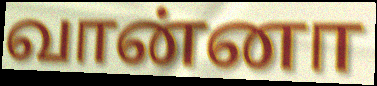
வான்னா